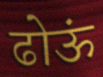
ढोऊं